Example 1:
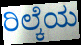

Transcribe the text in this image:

ರಿಲ್ಕೆಯ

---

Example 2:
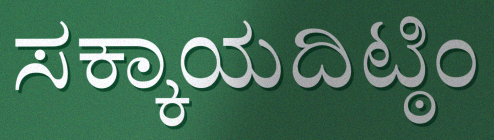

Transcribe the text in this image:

ಸಕ್ಕಾಯದಿಟ್ಠಿಂ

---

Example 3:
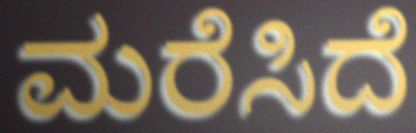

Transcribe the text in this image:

ಮರೆಸಿದೆ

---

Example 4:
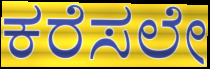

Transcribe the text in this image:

ಕರೆಸಲೇ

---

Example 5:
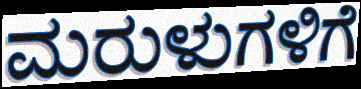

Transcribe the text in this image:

ಮರುಳುಗಳಿಗೆ